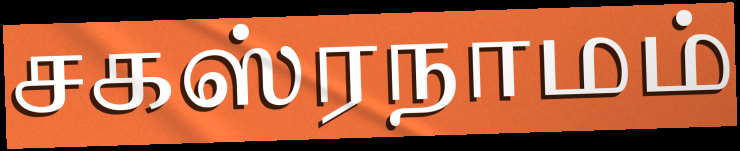
சகஸ்ரநாமம்